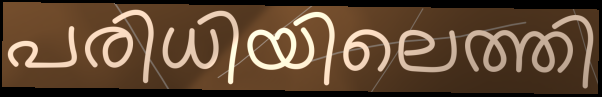
പരിധിയിലെത്തി